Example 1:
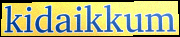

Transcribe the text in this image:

kidaikkum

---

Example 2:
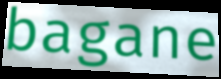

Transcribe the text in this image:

bagane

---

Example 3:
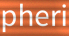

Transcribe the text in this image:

pheri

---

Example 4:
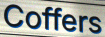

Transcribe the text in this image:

Coffers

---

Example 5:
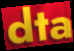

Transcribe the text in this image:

dta